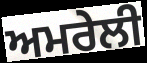
ਅਮਰੇਲੀ